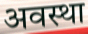
अवस्‍था